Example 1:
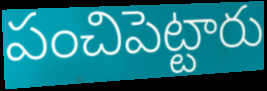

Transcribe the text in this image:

పంచిపెట్టారు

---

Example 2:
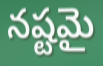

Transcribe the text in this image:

నష్టమై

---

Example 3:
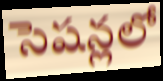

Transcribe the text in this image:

సెషన్లలో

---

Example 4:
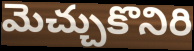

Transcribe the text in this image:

మెచ్చుకొనిరి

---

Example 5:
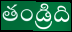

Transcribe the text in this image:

తండ్రిది